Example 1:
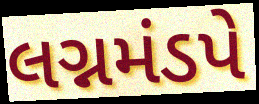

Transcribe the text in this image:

લગ્નમંડપે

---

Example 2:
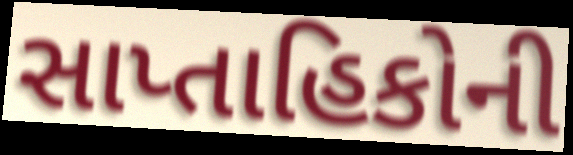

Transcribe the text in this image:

સાપ્તાહિકોની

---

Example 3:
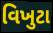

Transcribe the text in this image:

વિખુટા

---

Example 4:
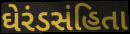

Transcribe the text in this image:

ઘેરંડસંહિતા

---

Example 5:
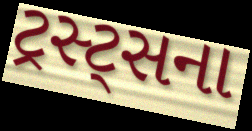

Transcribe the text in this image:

ટ્રસ્ટ્સના